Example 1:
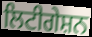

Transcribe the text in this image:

ਲਿਟੀਗੇਸ਼ਨ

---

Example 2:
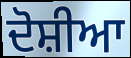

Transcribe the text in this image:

ਦੋਸ਼ੀਆ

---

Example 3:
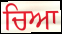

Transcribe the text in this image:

ਚਿਆ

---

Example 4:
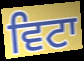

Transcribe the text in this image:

ਵਿਟਾ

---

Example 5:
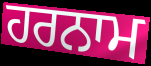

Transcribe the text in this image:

ਹਰਨਾਮ